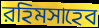
রহিমসাহেব